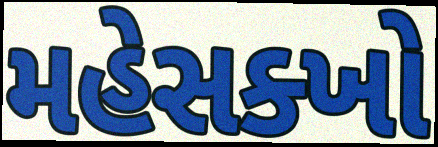
મહેસક્ખો